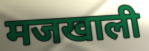
मजखाली